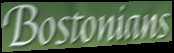
Bostonians